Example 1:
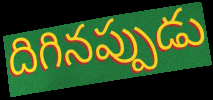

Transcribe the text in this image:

దిగినప్పుడు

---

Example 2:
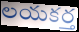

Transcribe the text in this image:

లయకర్త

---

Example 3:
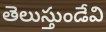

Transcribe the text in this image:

తెలుస్తుండేవి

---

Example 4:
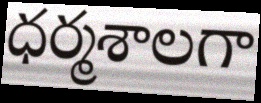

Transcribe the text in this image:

ధర్మశాలగా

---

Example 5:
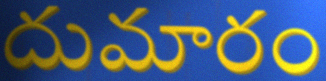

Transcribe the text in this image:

దుమారం